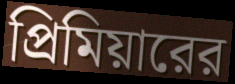
প্রিমিয়ারের